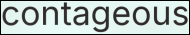
contageous